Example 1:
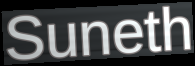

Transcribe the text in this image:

Suneth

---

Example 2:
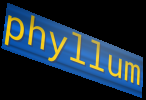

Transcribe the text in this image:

phyllum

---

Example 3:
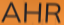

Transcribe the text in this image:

AHR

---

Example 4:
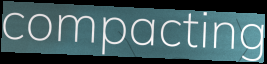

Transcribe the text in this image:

compacting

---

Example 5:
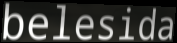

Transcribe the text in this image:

belesida